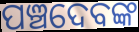
ପଞ୍ଚଦେବଙ୍କ